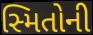
સ્મિતોની